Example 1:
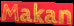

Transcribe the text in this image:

Makan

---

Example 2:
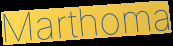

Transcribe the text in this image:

Marthoma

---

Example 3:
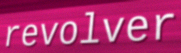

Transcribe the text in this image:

revolver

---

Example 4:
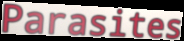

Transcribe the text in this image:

Parasites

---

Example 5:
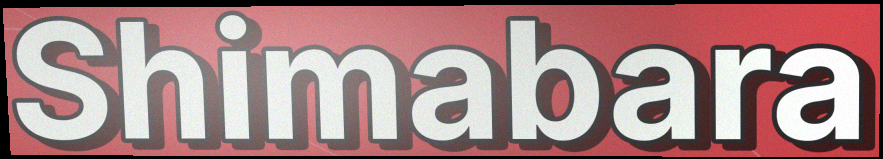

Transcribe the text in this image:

Shimabara